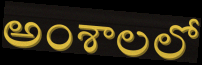
అంశాలలో